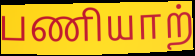
பணியாற்